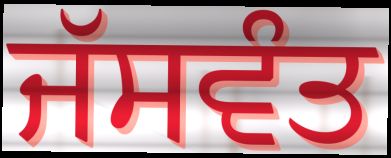
ਜੱਸਵੰਤ